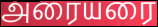
அரையரை